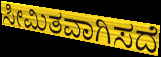
ಸೀಮಿತವಾಗಿಸದೆ